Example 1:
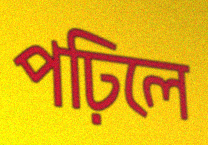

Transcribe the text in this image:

পঢ়িলে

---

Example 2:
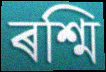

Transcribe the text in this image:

ৰশ্মি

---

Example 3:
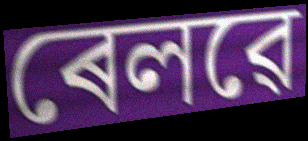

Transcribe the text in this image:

ৰেলৱে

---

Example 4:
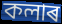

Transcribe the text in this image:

কলাৰ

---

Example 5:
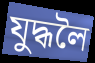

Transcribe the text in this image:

যুদ্ধলৈ